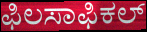
ಫಿಲಸಾಫಿಕಲ್